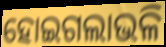
ହୋଇଗଲାଭଳି